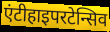
एंटीहाइपरटेन्सिव